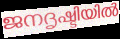
ജനദൃഷ്ടിയിൽ